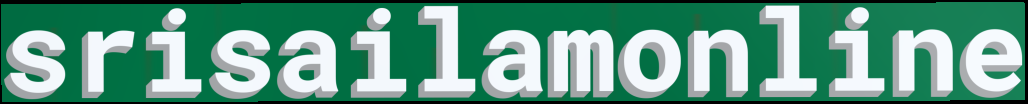
srisailamonline